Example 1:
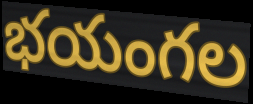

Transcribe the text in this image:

భయంగల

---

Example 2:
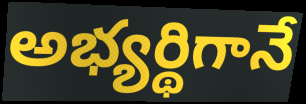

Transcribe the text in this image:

అభ్యర్థిగానే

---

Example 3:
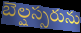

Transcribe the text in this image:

బెల్షస్సరును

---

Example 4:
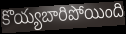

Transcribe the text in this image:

కొయ్యబారిపోయింది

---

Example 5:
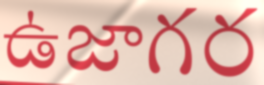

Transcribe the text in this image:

ఉజాగర